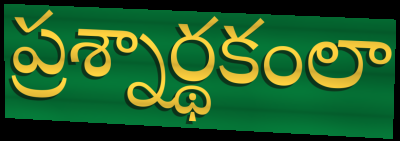
ప్రశ్నార్థకంలా